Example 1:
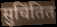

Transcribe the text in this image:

सुचिंतित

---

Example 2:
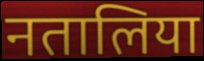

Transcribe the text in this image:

नतालिया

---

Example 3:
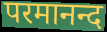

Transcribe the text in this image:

परमानन्द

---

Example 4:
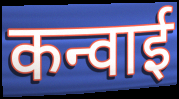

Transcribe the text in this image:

कन्वाई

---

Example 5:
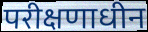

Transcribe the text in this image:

परीक्षणाधीन